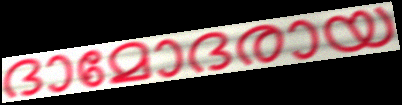
ദാമോദരായ